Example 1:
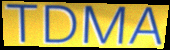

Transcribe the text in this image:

TDMA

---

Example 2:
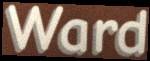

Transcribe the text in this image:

Ward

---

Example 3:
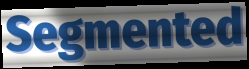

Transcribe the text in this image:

Segmented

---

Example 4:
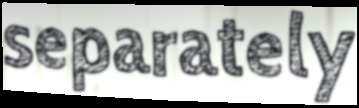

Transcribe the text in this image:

separately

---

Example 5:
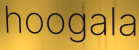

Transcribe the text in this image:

hoogala